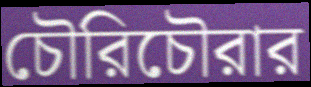
চৌরিচৌরার